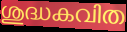
ശുദ്ധകവിത